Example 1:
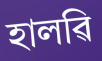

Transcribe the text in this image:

হালৱি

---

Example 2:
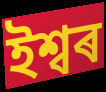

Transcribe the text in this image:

ইশ্বৰ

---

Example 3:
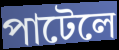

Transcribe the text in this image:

পাটেলে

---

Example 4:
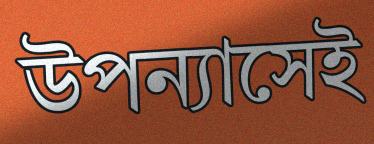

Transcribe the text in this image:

উপন্যাসেই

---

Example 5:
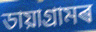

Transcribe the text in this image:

ডায়াগ্ৰামৰ